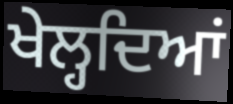
ਖੇਲ੍ਹਦਿਆਂ